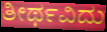
ತೀರ್ಥವಿದು